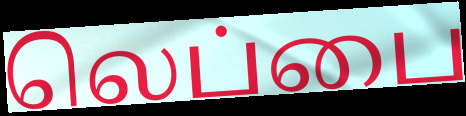
லெப்பை